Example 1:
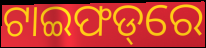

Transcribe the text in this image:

ଟାଇଫଡ୍‌ରେ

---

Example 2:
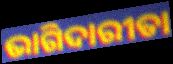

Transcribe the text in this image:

ଭାଗିଦାରୀତା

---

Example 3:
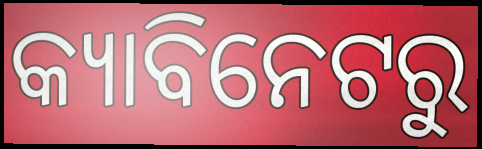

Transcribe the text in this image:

କ୍ୟାବିନେଟରୁ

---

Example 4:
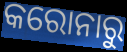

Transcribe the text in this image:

କରୋନାରୁ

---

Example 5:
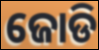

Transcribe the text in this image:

ଜୋଡି